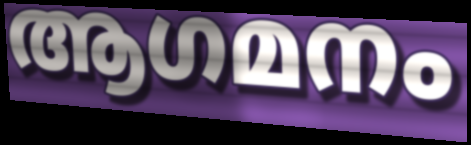
ആഗമനം